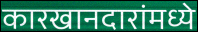
कारखानदारांमध्ये